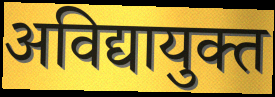
अविद्यायुक्त